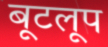
बूटलूप